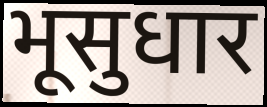
भूसुधार